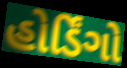
હોર્ડિંગો